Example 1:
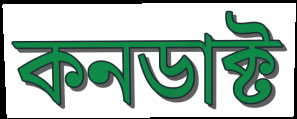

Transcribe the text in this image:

কনডাক্ট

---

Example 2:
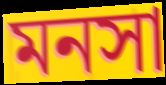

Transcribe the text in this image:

মনসা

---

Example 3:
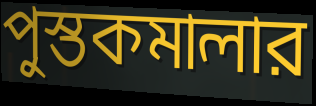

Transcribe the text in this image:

পুস্তকমালার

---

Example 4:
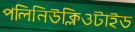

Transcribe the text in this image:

পলিনিউক্লিওটাইড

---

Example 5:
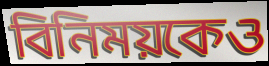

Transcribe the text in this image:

বিনিময়কেও